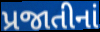
પ્રજાતીનાં